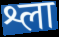
श्ला